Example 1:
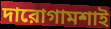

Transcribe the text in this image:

দারোগামশাই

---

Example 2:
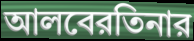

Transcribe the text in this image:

আলবেরতিনার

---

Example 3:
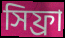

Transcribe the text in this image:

সিফ্রা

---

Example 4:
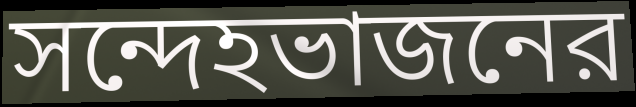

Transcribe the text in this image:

সন্দেহভাজনের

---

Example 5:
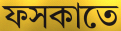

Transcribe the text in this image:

ফসকাতে